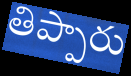
తిప్పారు